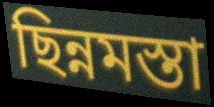
ছিন্নমস্তা